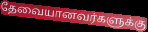
தேவையானவர்களுக்கு